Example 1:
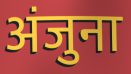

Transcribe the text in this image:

अंजुना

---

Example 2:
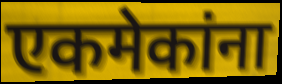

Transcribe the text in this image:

एकमेकांना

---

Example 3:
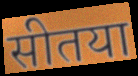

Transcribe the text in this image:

सीतया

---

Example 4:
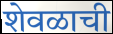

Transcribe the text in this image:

शेवळाची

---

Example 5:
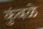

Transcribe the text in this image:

कुंबळे